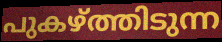
പുകഴ്ത്തിടുന്ന